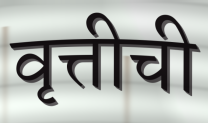
वृत्तीची